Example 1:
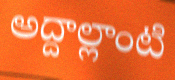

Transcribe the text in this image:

అద్దాల్లాంటి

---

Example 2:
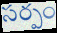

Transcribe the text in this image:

సర్పం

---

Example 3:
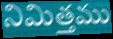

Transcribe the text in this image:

నిమిత్తము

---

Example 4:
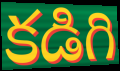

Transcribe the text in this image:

కడిగి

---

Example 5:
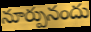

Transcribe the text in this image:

నూర్పునందు